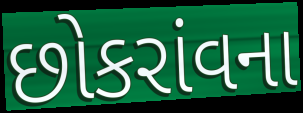
છોકરાંવના